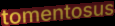
tomentosus